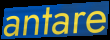
antare